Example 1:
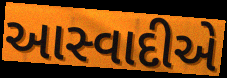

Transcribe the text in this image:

આસ્વાદીએ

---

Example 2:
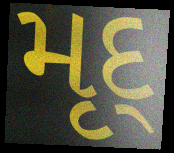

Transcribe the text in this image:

મૃદ્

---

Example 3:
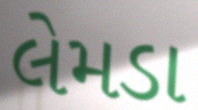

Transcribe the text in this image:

લેમડા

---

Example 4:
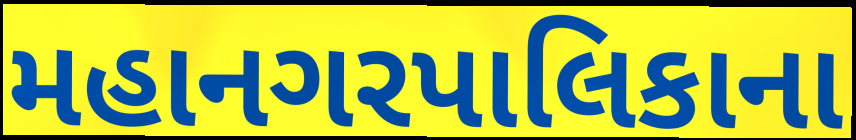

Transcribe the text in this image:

મહાનગરપાલિકાના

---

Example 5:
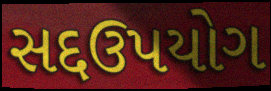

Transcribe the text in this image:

સદ્દઉપયોગ